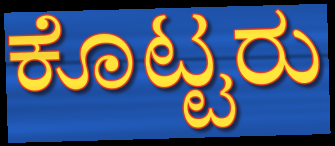
ಕೊಟ್ಟರು